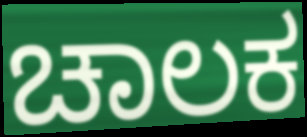
ಚಾಲಕ